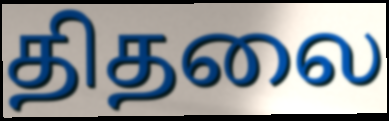
திதலை